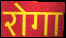
रोगा